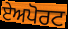
ਏਅਪੋਰਟ